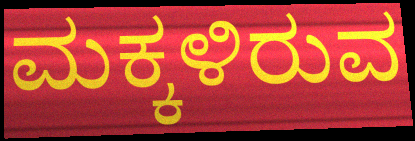
ಮಕ್ಕಳಿರುವ